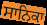
ਸਾਨਿਕਾ